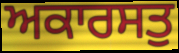
ਅਕਾਰਸਤੁ